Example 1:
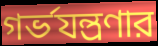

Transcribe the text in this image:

গর্ভযন্ত্রণার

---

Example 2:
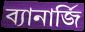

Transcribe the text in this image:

ব্যানার্জি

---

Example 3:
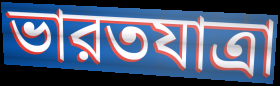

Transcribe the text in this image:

ভারতযাত্রা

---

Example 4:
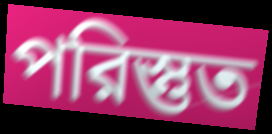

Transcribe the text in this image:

পরিস্তুত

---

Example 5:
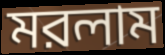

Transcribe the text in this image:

মরলাম